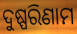
ଦୁଷ୍ପରିଣାମ